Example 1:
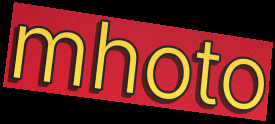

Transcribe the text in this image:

mhoto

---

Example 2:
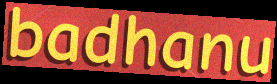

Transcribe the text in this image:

badhanu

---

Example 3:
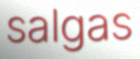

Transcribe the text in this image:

salgas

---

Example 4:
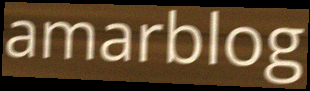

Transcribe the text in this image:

amarblog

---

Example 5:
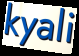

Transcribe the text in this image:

kyali